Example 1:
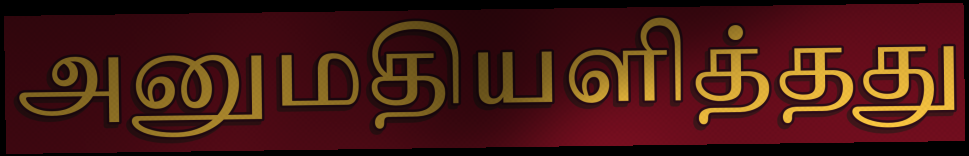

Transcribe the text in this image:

அனுமதியளித்தது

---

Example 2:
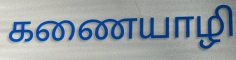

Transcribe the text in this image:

கணையாழி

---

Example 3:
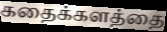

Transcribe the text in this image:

கதைக்களத்தை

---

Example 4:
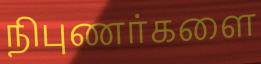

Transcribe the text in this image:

நிபுணர்களை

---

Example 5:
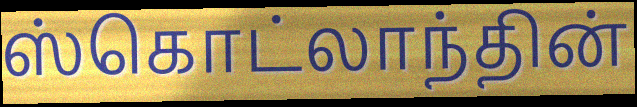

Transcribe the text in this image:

ஸ்கொட்லாந்தின்